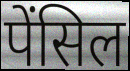
पेंसिल